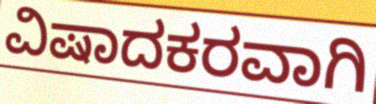
ವಿಷಾದಕರವಾಗಿ